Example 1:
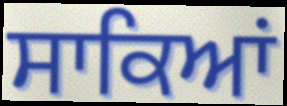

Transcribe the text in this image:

ਸਾਕਿਆਂ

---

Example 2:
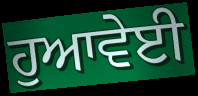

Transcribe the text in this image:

ਹੁਆਵੇਈ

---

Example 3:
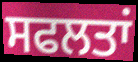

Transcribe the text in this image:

ਸਫਲਤਾਂ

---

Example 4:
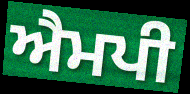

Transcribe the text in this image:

ਐਮਪੀ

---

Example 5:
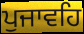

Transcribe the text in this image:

ਪੁਜਾਵਹਿ